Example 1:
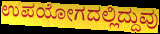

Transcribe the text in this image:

ಉಪಯೋಗದಲ್ಲಿದ್ದುವು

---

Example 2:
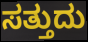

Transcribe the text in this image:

ಸತ್ತುದು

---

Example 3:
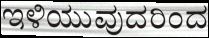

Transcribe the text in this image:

ಇಳಿಯುವುದರಿಂದ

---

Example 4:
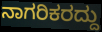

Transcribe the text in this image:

ನಾಗರಿಕರದ್ದು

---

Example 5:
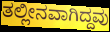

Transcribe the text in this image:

ತಲ್ಲೀನವಾಗಿದ್ದವು